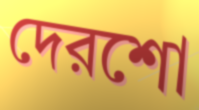
দেরশো